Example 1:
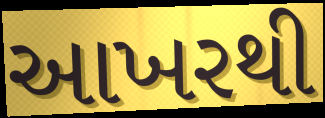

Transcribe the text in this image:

આખરથી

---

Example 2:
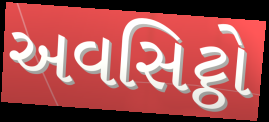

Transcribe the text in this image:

અવસિટ્ઠો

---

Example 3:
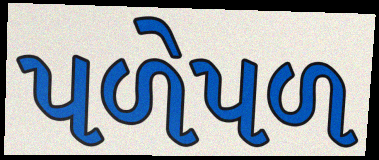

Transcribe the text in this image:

પળેપળ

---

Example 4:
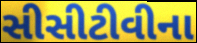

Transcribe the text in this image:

સીસીટીવીના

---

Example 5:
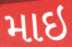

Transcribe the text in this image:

માઇ